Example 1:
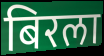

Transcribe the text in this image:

बिरला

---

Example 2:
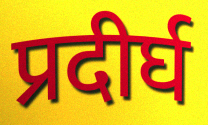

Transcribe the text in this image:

प्रदीर्घ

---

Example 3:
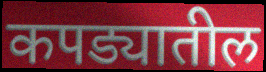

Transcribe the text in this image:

कपड्यातील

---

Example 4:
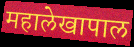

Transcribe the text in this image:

महालेखापाल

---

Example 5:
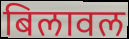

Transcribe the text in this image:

बिलावल